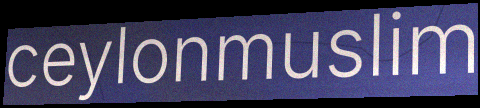
ceylonmuslim